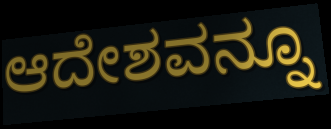
ಆದೇಶವನ್ನೂ